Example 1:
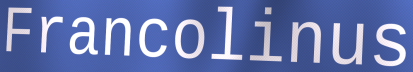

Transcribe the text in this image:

Francolinus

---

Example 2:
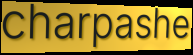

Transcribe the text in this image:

charpashe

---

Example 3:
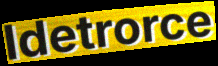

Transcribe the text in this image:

Idetrorce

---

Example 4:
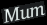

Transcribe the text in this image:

Mum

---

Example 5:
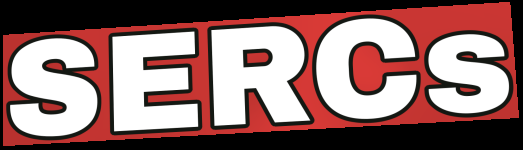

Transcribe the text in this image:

SERCs